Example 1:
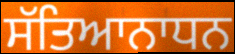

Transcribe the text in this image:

ਸੱਤਿਆਨਾਧਨ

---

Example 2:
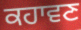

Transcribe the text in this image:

ਕਹਾਵਣ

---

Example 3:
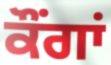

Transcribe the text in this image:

ਕੌਂਗਾਂ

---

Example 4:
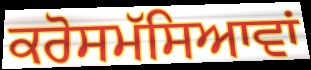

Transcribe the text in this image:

ਕਰੋਸਮੱਸਿਆਵਾਂ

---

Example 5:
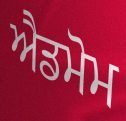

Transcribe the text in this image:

ਐਡਮੋਮ